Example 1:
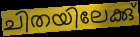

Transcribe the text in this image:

ചിതയിലേക്കു്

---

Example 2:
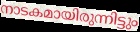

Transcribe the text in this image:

നാടകമായിരുന്നിട്ടും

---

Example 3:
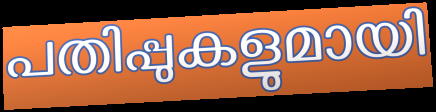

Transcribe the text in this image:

പതിപ്പുകളുമായി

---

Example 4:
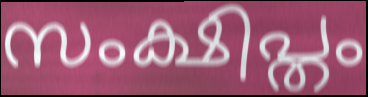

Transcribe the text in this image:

സംക്ഷിപ്തം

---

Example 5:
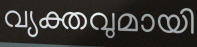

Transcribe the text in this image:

വ്യക്തവുമായി